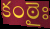
కంఠైః